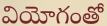
వియోగంతో